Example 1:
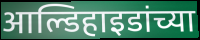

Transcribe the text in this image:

आल्डिहाइडांच्या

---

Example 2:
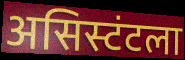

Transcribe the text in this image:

असिस्टंटला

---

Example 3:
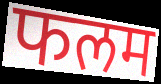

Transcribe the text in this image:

फलम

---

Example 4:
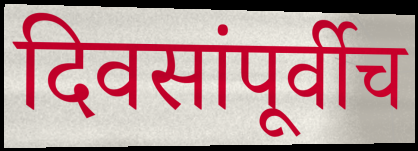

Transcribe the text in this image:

दिवसांपूर्वीच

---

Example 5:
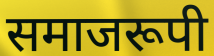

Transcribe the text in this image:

समाजरूपी